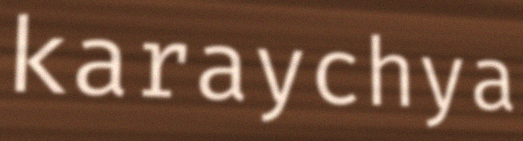
karaychya